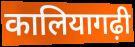
कालियागढ़ी